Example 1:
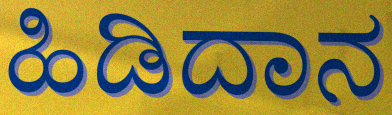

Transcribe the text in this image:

ಹಿಡಿದಾನ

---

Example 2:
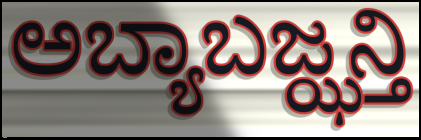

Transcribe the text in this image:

ಅಬ್ಯಾಬಜ್ಝನ್ತಿ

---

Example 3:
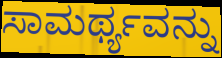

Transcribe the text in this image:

ಸಾಮರ್ಥ್ಯವನ್ನು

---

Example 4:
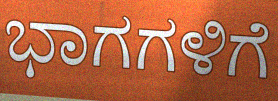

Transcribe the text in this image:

ಭಾಗಗಳಿಗೆ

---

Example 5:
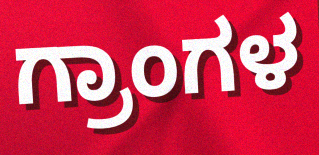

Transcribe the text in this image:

ಗ್ರಾಂಗಳ